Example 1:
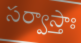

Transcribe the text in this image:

సర్వాస్తాః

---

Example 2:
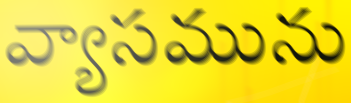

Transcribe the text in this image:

వ్యాసమును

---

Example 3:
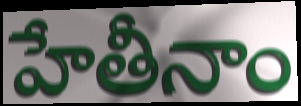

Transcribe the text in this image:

హేతీనాం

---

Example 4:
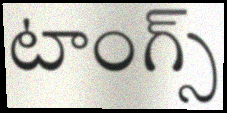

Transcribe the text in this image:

టాంగ్స్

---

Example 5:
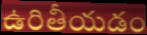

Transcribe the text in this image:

ఉరితీయడం